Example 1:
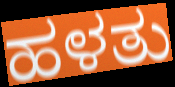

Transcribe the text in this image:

ಹಳತು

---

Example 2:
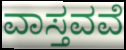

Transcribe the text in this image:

ವಾಸ್ತವವೆ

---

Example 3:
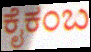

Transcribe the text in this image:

ಕೈಕಂಬ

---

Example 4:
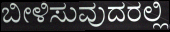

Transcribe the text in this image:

ಬೀಳಿಸುವುದರಲ್ಲಿ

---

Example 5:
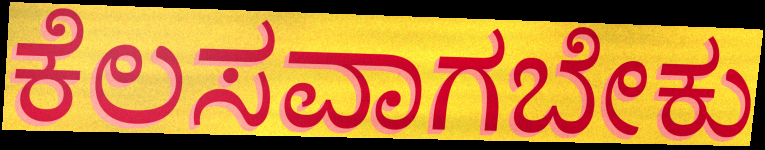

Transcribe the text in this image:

ಕೆಲಸವಾಗಬೇಕು